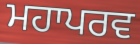
ਮਹਾਪਰਵ